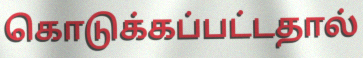
கொடுக்கப்பட்டதால்